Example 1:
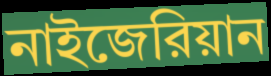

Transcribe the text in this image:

নাইজেরিয়ান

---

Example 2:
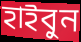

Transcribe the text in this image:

হাইবুন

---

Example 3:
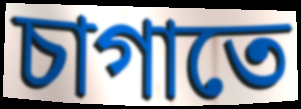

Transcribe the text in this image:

চাগাতে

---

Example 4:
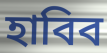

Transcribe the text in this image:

হাবিব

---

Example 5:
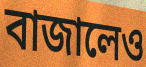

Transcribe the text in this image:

বাজালেও